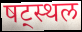
षट्स्थल